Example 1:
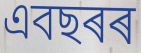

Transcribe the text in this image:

এবছৰৰ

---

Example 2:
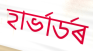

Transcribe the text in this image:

হাৰ্ভাৰ্ডৰ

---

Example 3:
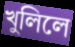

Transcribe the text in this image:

খুলিলে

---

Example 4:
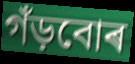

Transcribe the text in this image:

গঁড়বোৰ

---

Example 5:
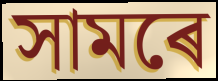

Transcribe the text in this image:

সামৰে